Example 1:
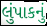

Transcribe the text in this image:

લુંપાકનું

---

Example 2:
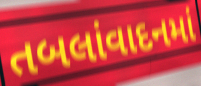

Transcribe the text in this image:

તબલાંવાદનમાં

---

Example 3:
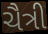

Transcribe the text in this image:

ચૈત્રી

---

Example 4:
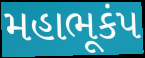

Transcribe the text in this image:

મહાભૂકંપ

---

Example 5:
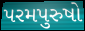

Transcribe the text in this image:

પરમપુરુષો